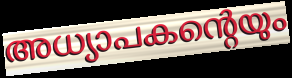
അധ്യാപകന്റെയും